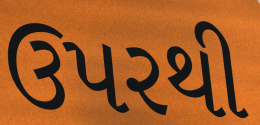
ઉપરથી